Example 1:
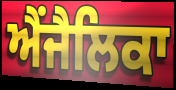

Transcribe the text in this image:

ਐਂਜੈਲਿਕਾ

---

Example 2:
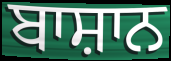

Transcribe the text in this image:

ਬਾਸ਼ਾਨ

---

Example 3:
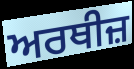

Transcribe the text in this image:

ਅਰਥੀਜ਼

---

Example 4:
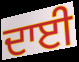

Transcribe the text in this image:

ਦਾਈ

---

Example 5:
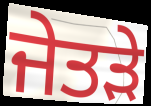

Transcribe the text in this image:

ਜੇਤੜੇ